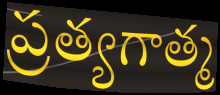
ప్రత్యగాత్మ